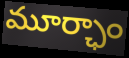
మూర్ఛాం